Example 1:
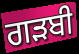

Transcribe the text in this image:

ਗੜਬੀ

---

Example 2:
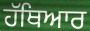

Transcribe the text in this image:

ਹੱਥਿਆਰ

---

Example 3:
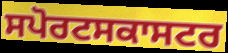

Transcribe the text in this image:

ਸਪੋਰਟਸਕਾਸਟਰ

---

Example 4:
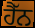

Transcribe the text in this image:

ਹੈੱਨ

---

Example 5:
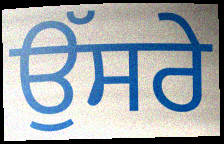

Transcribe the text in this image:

ਉੱਸਰੇ